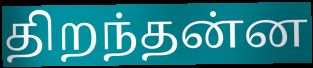
திறந்தன்ன